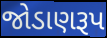
જોડાણરૂપ